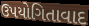
ઉપયોગિતાવાદ